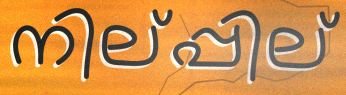
നില്പ്പില്